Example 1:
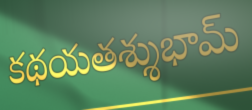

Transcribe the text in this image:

కథయతశ్శుభామ్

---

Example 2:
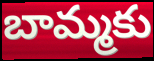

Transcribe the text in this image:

బామ్మకు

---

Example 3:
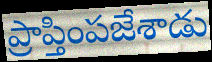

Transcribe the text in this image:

ప్రాప్తింపజేశాడు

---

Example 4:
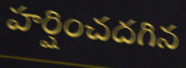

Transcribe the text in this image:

హర్షించదగిన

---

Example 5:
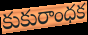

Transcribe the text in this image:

కుకురాంధక